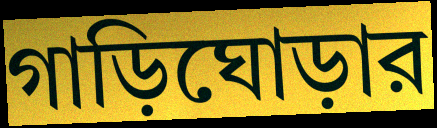
গাড়িঘোড়ার